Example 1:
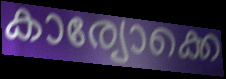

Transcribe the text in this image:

കാര്യോക്കെ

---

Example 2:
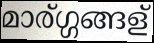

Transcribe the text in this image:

മാര്ഗ്ഗങ്ങള്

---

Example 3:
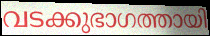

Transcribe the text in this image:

വടക്കുഭാഗത്തായി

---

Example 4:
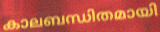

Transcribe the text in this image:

കാലബന്ധിതമായി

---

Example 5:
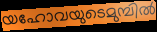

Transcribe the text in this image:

യഹോവയുടെമുമ്പിൽ